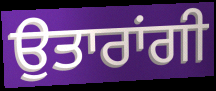
ਉਤਾਰਾਂਗੀ